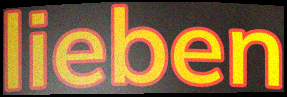
lieben